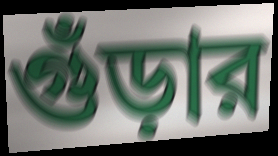
গুঁড়ার